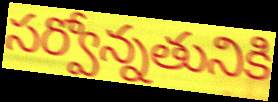
సర్వోన్నతునికి